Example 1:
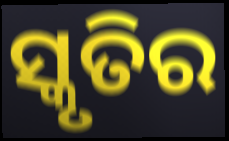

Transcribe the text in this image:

ସ୍କୃତିର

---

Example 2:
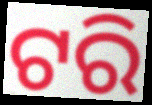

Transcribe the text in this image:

ଟରି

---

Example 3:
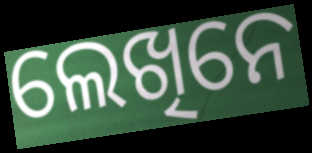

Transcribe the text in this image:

ଲେଖିନେ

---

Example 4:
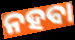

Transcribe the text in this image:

ନହବା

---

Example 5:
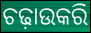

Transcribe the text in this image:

ଚଢ଼ାଉକରି